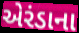
એરંડાના